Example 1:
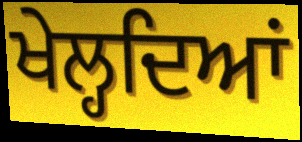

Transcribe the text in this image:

ਖੇਲ੍ਹਦਿਆਂ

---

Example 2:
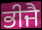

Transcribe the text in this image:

ਭੀਜੈ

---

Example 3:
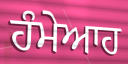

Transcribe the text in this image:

ਹੰਮੇਆਹ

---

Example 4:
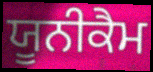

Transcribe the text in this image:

ਯੂਨੀਕੈਮ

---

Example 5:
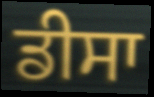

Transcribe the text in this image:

ਡੀਸਾ